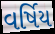
વર્ષિય